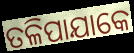
ତଳିପାଯାକେ